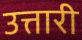
उत्तारी